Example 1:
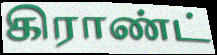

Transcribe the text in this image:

கிராண்ட்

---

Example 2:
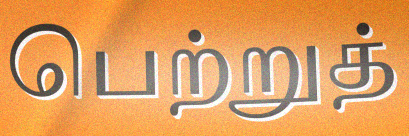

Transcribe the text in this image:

பெற்றுத்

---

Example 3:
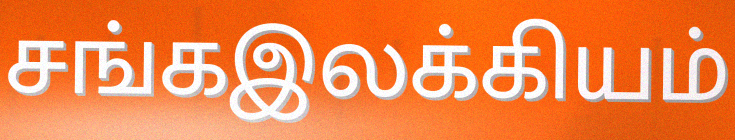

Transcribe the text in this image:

சங்கஇலக்கியம்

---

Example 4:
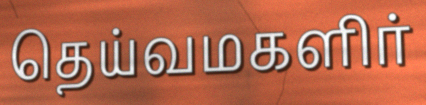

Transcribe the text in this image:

தெய்வமகளிர்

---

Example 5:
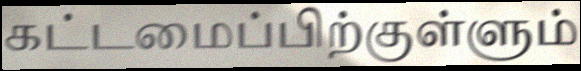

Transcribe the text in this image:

கட்டமைப்பிற்குள்ளும்